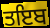
ਤਇਬ